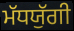
ਮੱਧਯੁੱਗੀ